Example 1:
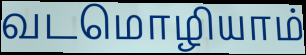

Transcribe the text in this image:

வடமொழியாம்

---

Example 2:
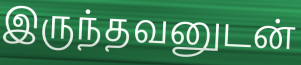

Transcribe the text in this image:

இருந்தவனுடன்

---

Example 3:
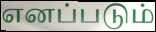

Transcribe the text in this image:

எனப்படும்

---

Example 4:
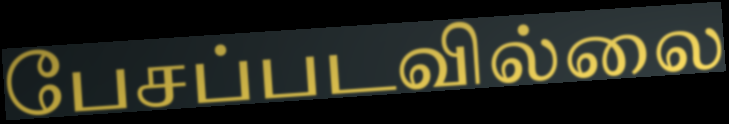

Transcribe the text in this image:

பேசப்படவில்லை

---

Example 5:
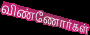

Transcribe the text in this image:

விண்ணோர்கள்